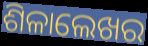
ଶିଳାଲେଖର